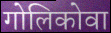
गोलिकोवा